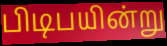
பிடிபயின்று